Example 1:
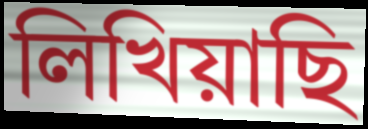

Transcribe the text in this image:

লিখিয়াছি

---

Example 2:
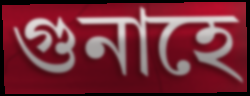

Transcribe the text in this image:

গুনাহে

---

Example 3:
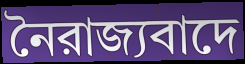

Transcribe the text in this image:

নৈরাজ্যবাদে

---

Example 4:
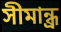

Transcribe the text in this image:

সীমান্ধ্র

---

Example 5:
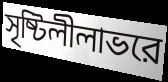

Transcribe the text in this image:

সৃষ্টিলীলাভরে